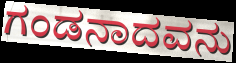
ಗಂಡನಾದವನು